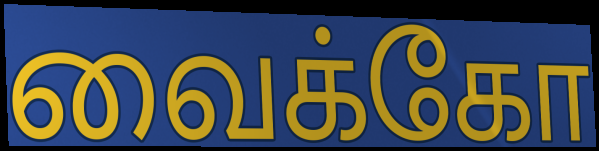
வைக்கோ